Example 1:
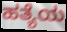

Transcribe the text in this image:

ಹತ್ಯೆಯ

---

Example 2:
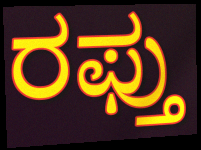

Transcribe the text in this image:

ರಫ್ತು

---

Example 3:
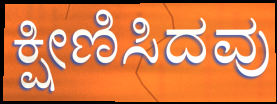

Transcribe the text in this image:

ಕ್ಷೀಣಿಸಿದವು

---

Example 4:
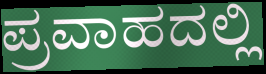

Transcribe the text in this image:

ಪ್ರವಾಹದಲ್ಲಿ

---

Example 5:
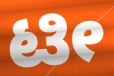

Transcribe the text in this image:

ಟೀ